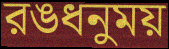
রঙধনুময়